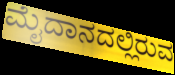
ಮೈದಾನದಲ್ಲಿರುವ